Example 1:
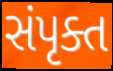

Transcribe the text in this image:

સંપૃક્ત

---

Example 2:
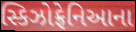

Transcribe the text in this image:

સ્કિઝોફ્રેનિઆના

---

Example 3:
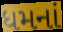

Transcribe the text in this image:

ધમનાં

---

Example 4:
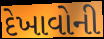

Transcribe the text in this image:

દેખાવોની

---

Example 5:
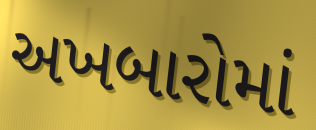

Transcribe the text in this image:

અખબારોમાં